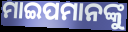
ମାଇପମାନଙ୍କୁ